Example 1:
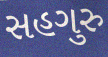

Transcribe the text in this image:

સહગુરુ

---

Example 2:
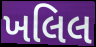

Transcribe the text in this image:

ખલિલ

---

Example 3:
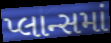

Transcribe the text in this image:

પ્લાન્સમાં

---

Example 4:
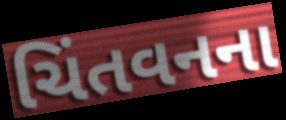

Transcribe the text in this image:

ચિંતવનના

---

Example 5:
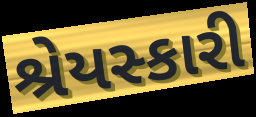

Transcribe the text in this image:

શ્રેયસ્કારી